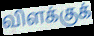
விளக்குக்